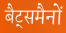
बैट्समैनों